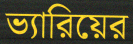
ভ্যারিয়ের